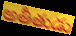
అతీతుడు